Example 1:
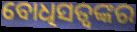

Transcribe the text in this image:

ବୋଧିସତ୍ୱଙ୍କର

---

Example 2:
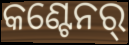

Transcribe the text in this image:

କଣ୍ଟେନର୍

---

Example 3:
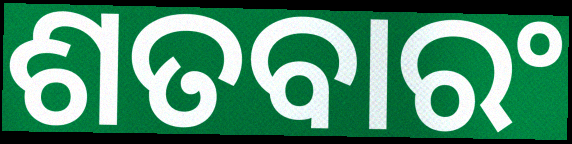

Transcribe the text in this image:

ଶତବାରଂ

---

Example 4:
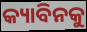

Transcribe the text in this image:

କ୍ୟାବିନକୁ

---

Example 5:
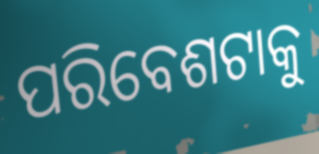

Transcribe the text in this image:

ପରିବେଶଟାକୁ